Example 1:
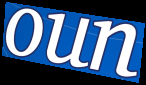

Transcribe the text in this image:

oun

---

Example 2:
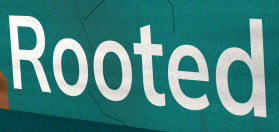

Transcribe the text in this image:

Rooted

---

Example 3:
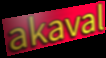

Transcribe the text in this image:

akaval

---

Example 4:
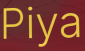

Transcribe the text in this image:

Piya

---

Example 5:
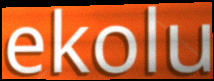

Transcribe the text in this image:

ekolu